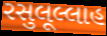
રસુલૂલ્લાહ